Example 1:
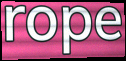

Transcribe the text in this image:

rope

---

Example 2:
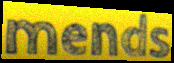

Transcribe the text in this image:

mends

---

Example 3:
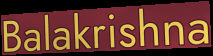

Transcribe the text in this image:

Balakrishna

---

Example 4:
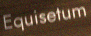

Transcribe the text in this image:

Equisetum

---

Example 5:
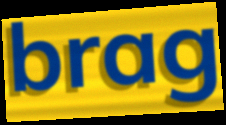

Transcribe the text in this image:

brag